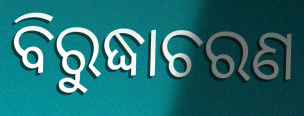
ବିରୁଦ୍ଧାଚରଣ